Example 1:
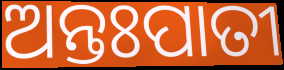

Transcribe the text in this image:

ଅନ୍ତଃପାତୀ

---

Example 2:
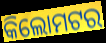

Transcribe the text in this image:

କିଲୋମଟର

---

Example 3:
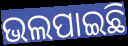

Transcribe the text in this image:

ଭଲପାଇଛି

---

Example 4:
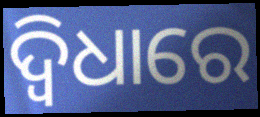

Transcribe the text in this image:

ଦ୍ଵିଧାରେ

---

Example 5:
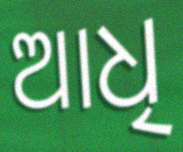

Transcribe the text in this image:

ଆଧି